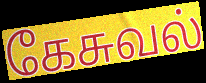
கேசுவல்